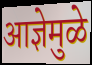
आज्ञेमुळे